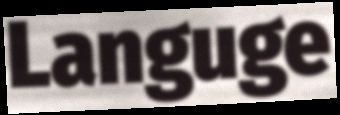
Languge